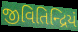
જીવિતિન્દ્રિયં